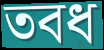
তবধ